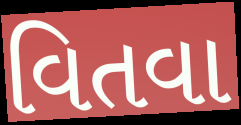
વિતવા